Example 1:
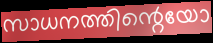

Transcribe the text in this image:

സാധനത്തിന്റെയോ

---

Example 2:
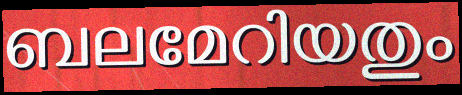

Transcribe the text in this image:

ബലമേറിയതും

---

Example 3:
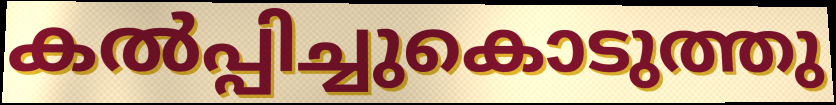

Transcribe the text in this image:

കൽപ്പിച്ചുകൊടുത്തു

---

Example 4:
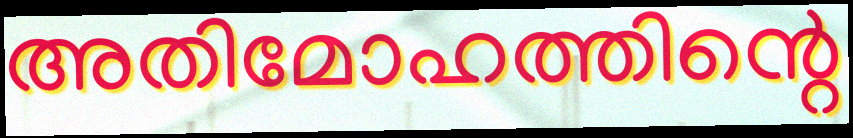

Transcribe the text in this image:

അതിമോഹത്തിന്റെ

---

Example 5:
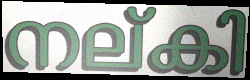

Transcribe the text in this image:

നല്‌കി